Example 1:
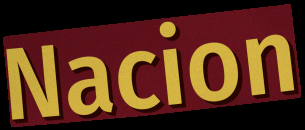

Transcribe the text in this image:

Nacion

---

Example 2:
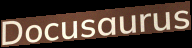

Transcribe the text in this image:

Docusaurus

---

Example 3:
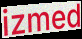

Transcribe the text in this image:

izmed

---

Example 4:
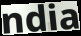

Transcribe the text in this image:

ndia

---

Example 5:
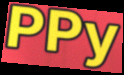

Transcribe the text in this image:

PPy